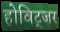
होविट्जर